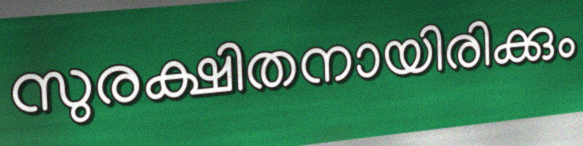
സുരക്ഷിതനായിരിക്കും